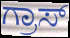
ಗ್ರಾಸ್